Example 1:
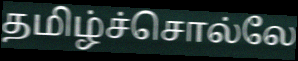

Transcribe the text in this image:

தமிழ்ச்சொல்லே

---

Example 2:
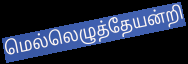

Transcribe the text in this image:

மெல்லெழுத்தேயன்றி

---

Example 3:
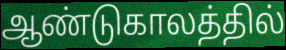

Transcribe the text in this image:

ஆண்டுகாலத்தில்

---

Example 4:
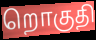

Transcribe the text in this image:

றொகுதி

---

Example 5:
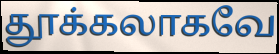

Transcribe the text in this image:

தூக்கலாகவே